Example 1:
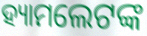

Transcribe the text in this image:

ହ୍ୟାମଲେଟଙ୍କ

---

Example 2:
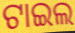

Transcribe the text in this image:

ଟାଇଲ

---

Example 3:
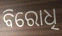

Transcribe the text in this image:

ବିରୋଧି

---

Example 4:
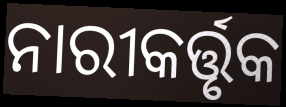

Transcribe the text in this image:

ନାରୀକର୍ତ୍ତୃକ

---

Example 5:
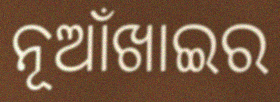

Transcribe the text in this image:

ନୂଆଁଖାଇର